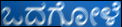
ಒದಗೋಳೆ